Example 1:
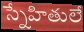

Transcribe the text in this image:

స్నేహితులే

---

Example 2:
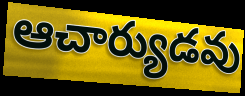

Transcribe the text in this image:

ఆచార్యుడవు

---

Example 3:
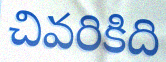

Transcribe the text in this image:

చివరికిది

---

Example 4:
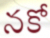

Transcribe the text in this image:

నకో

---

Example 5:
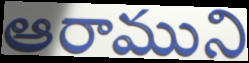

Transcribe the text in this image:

ఆరాముని